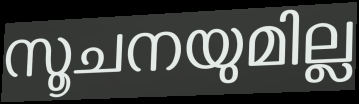
സൂചനയുമില്ല